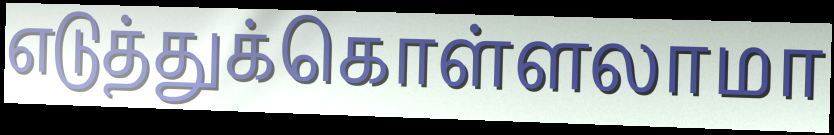
எடுத்துக்கொள்ளலாமா